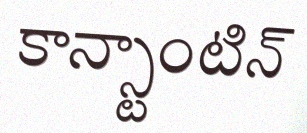
కాన్స్టాంటిన్